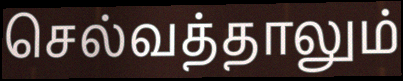
செல்வத்தாலும்